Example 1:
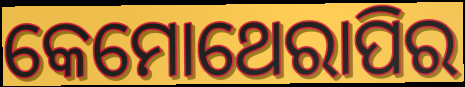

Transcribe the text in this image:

କେମୋଥେରାପିର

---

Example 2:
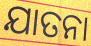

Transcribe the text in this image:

ଯାତନା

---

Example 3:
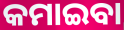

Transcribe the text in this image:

କମାଇବା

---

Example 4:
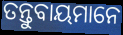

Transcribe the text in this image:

ତନ୍ତୁବାୟମାନେ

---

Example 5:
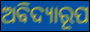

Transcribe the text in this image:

ଅବିଦ୍ୟାରୂପ